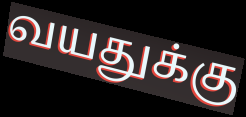
வயதுக்கு